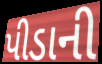
પીડાની